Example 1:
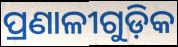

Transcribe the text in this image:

ପ୍ରଣାଳୀଗୁଡ଼ିକ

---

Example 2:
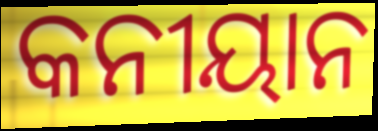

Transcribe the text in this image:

କନୀୟାନ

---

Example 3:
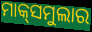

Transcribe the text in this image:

ମାକ୍‌ସମୁଲାର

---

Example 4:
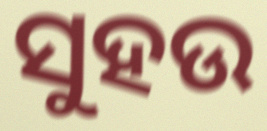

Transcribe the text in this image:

ସୁହଉ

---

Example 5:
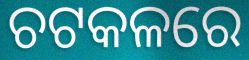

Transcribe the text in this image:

ଚଟକଳରେ